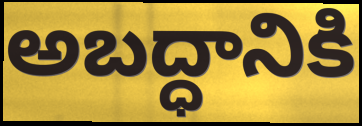
అబద్ధానికి